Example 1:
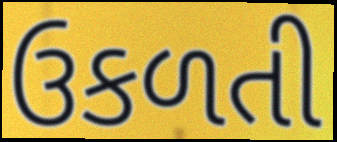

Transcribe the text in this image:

ઉકળતી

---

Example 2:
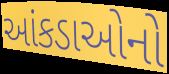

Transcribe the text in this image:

આંકડાઓનો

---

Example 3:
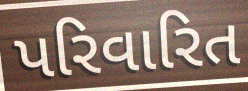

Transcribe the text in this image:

પરિવારિત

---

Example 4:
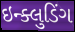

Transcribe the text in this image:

ઇન્ક્લુડિંગ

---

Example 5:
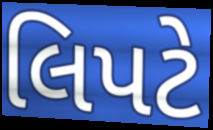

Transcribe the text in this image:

લિપટે